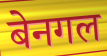
बेनगल